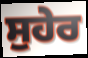
ਸੁਹੇਰ